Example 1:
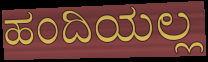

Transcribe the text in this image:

ಹಂದಿಯಲ್ಲ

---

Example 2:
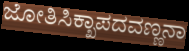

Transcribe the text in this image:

ಜೋತಿಸಿಕ್ಖಾಪದವಣ್ಣನಾ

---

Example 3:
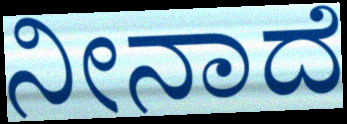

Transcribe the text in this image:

ನೀನಾದೆ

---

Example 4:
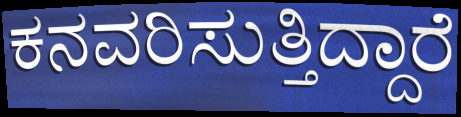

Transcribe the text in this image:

ಕನವರಿಸುತ್ತಿದ್ದಾರೆ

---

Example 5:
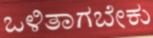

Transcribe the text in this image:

ಒಳಿತಾಗಬೇಕು